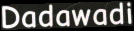
Dadawadi